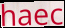
haec